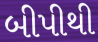
બીપીથી